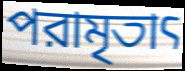
পরামৃতাৎ